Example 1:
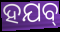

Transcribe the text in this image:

ହଯବ୍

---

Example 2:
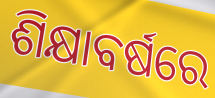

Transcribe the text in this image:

ଶିକ୍ଷାବର୍ଷରେ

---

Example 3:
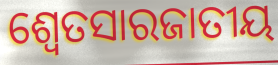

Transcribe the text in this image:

ଶ୍ଵେତସାରଜାତୀୟ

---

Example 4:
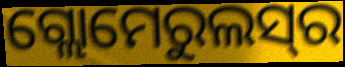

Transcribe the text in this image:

ଗ୍ଲୋମେରୁଲସ୍‌ର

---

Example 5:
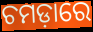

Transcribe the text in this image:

ଚମଡ଼ାରେ